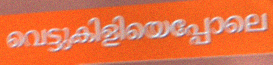
വെട്ടുകിളിയെപ്പോലെ